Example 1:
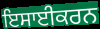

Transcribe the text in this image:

ਇਸਾਈਕਰਨ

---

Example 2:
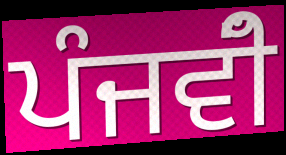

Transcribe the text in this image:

ਪੰਜਵੀਁ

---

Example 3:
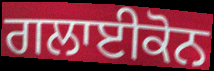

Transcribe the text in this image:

ਗਲਾਈਕੋਨ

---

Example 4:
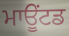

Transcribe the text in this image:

ਮਾਊਂਟਡ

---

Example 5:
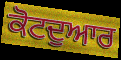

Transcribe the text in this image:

ਕੋਟਦੁਆਰ